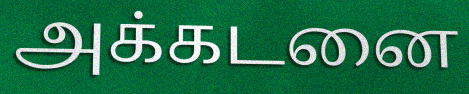
அக்கடனை